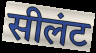
सीलंट